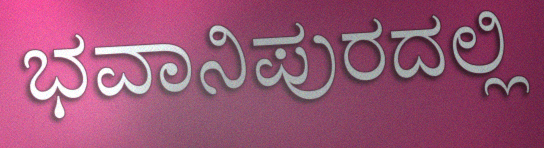
ಭವಾನಿಪುರದಲ್ಲಿ